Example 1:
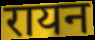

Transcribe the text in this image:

रायन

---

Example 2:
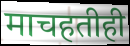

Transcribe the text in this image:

माचहतीही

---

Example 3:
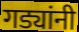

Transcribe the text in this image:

गड्यांनी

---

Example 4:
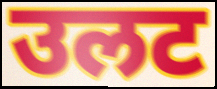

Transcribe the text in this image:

उलट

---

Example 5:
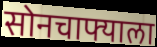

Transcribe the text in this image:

सोनचाफ्याला